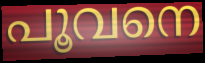
പൂവനെ